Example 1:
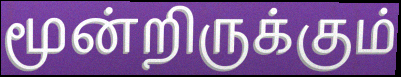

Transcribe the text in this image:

மூன்றிருக்கும்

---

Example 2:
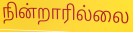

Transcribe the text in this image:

நின்றாரில்லை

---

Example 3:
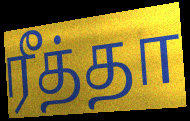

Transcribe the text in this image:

ரீத்தா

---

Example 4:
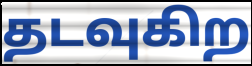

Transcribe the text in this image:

தடவுகிற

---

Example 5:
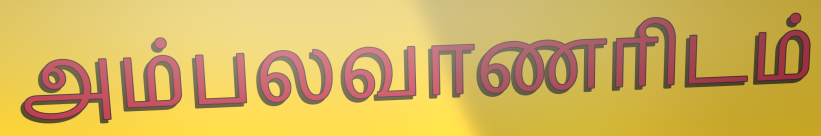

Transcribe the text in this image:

அம்பலவாணரிடம்